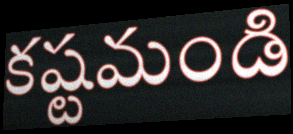
కష్టమండి